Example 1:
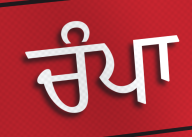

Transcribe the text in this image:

ਚੰਪਾ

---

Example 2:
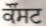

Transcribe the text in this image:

ਕੌਂਸਟ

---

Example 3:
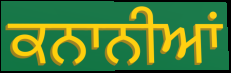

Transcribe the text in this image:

ਕਨਾਨੀਆਂ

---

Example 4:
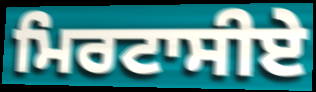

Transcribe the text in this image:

ਮਿਰਟਾਸੀਏ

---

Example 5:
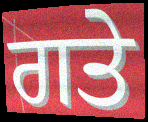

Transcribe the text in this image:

ਗਤੇ